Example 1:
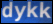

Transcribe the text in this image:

dykk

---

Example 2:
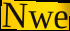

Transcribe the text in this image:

Nwe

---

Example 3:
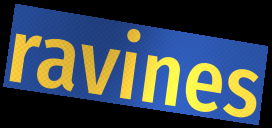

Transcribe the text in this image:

ravines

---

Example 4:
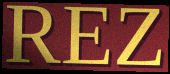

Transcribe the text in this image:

REZ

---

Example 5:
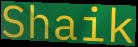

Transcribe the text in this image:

Shaik